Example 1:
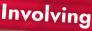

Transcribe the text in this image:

Involving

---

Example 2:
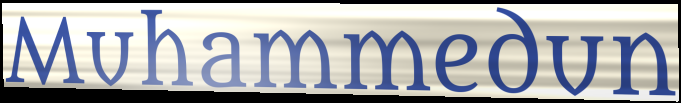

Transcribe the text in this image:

Muhammedun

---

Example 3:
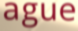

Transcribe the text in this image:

ague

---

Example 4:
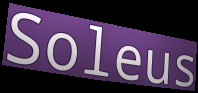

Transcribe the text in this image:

Soleus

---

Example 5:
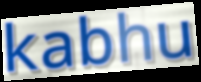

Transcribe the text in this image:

kabhu